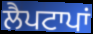
ਲੈਪਟਾਪਾਂ